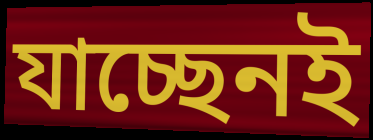
যাচ্ছেনই